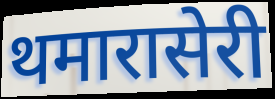
थमारासेरी